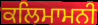
ਕਲਿਮਾਮਨੀ